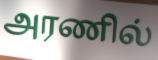
அரணில்